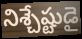
నిశ్చేష్టుడై